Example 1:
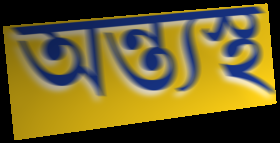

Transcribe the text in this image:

অন্ত্যস্থ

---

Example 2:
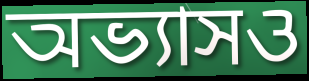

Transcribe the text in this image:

অভ্যাসও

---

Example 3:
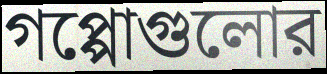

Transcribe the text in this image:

গপ্পোগুলোর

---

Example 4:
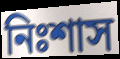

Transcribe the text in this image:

নিঃশাস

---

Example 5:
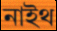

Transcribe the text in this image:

নাইথ